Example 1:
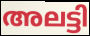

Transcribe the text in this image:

അലട്ടി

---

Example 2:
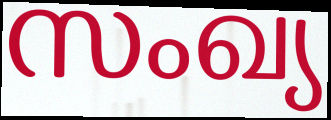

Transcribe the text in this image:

സംഖ്യ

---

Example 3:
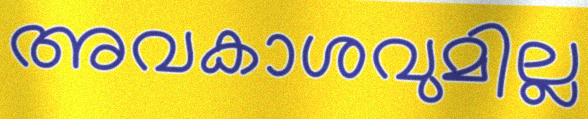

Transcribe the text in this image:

അവകാശവുമില്ല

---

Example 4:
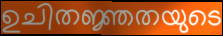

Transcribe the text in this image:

ഉചിതജ്ഞതയുടെ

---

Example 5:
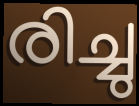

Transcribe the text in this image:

രിച്ചു